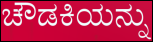
ಚೌಡಕಿಯನ್ನು